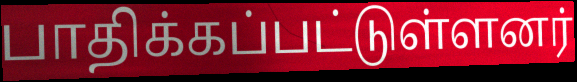
பாதிக்கப்பட்டுள்ளனர்